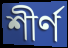
শীর্ণ